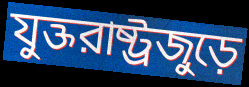
যুক্তরাষ্ট্রজুড়ে